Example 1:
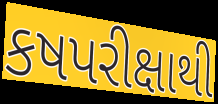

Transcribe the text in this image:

કષપરીક્ષાથી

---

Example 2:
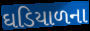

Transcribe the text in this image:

ઘડિયાળના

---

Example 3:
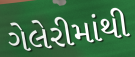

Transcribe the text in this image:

ગેલેરીમાંથી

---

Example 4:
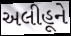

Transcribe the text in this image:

અલીહૂને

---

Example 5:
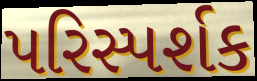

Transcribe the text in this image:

પરિસ્પર્શક